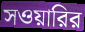
সওয়ারির